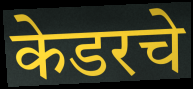
केडरचे